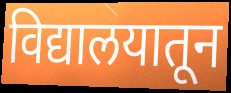
विद्यालयातून